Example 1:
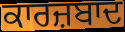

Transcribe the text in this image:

ਕਾਰਜ਼ਬਾਦ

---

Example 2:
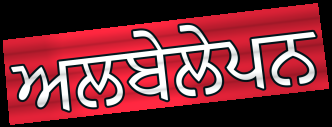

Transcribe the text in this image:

ਅਲਬੇਲੇਪਨ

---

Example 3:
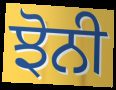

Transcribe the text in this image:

ਝੋਨੀ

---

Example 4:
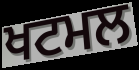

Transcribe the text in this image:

ਖਟਮਲ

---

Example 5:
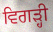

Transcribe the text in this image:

ਵਿਗੜ੍ਹੀ